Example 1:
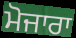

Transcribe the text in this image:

ਮੋਜਾਰਾ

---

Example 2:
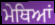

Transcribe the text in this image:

ਮੇਥਿਆਂ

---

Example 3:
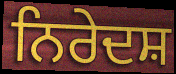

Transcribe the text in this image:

ਨਿਰੇਦਸ਼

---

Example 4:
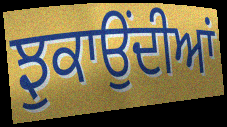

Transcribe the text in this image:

ਝੁਕਾਉਂਦੀਆਂ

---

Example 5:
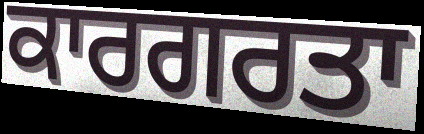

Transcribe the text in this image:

ਕਾਰਗਰਤਾ